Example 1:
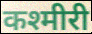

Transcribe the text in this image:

कश्मीरी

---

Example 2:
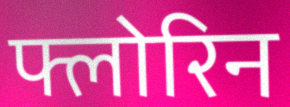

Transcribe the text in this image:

फ्लोरिन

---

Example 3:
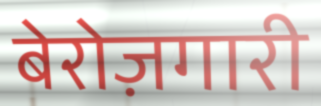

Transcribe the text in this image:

बेरोज़गारी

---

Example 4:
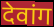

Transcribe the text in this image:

देवांग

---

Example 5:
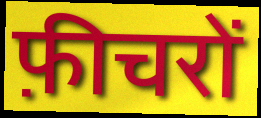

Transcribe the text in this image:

फ़ीचरों